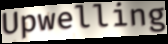
Upwelling